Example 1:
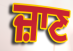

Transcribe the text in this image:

ਜ਼ਾਣ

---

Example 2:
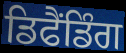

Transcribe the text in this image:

ਡਿਫੈਂਡਿੰਗ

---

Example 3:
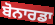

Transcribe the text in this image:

ਬੋਨਾਰਡਾ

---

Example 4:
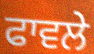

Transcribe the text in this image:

ਫਾਵਲੇ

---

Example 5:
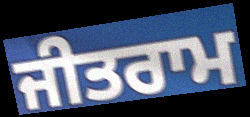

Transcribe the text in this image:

ਜੀਤਰਾਮ